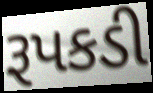
રૂપકડી